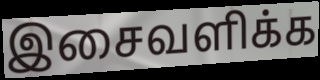
இசைவளிக்க